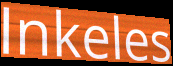
Inkeles